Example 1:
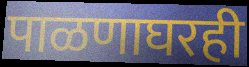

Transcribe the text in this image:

पाळणाघरही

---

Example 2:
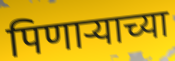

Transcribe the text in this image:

पिणाऱ्याच्या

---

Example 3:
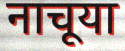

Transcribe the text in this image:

नाचूया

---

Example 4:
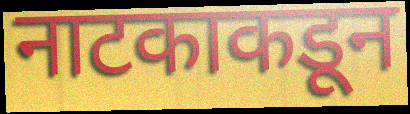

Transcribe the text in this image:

नाटकाकडून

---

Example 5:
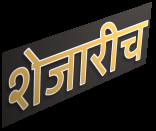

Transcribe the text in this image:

शेजारीच